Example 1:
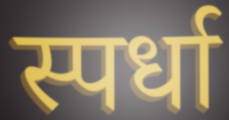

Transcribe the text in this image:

स्पर्धा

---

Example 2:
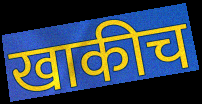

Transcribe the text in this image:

खाकीच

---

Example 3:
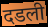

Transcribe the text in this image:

दडली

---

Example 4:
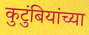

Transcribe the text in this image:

कुटुंबियांच्या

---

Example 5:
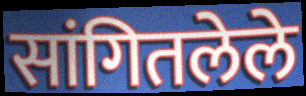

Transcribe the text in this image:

सांगितलेले